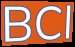
BCl